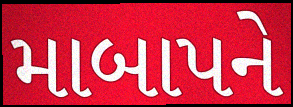
માબાપને